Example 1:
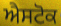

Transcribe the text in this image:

ਐਸਟੋਕ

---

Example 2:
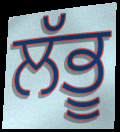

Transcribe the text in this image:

ਲੱਭੂ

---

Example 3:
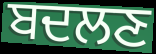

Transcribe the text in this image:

ਬਦਲਣ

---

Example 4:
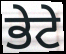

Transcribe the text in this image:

ਭੇਟੇ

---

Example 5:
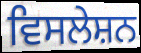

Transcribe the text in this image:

ਵਿਸਲੇਸ਼ਨ